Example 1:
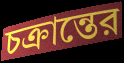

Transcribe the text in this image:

চক্রান্তের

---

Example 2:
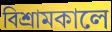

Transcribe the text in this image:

বিশ্রামকালে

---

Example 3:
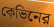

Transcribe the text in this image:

কেভিনের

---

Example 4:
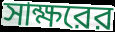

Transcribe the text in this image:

সাক্ষরের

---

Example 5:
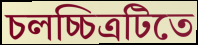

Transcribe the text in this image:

চলচ্চিত্রটিতে